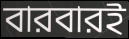
বারবারই